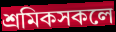
শ্ৰমিকসকলে